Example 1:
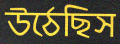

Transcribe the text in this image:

উঠেছিস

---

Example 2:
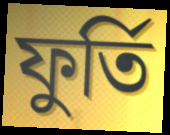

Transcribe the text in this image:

ফুর্তি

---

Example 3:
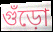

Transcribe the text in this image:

গুঁড়ো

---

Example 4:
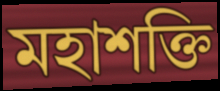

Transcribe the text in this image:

মহাশক্তি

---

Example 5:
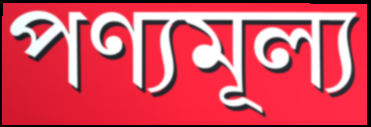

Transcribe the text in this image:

পণ্যমূল্য